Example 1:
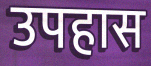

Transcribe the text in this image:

उपहास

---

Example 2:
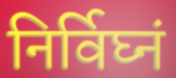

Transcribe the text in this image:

निर्विघ्नं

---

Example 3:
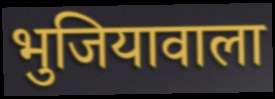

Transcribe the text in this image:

भुजियावाला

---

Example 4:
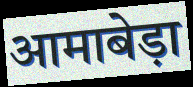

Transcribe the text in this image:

आमाबेड़ा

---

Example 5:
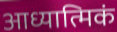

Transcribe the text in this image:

आध्यात्मिकं